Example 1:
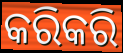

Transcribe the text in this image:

କରିକରି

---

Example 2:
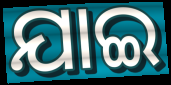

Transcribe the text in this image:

ଯାଇ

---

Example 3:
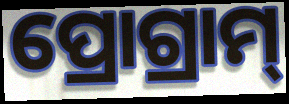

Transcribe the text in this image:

ପ୍ରୋଗ୍ରାମ୍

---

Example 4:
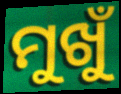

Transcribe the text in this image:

ମୁଖୁଁ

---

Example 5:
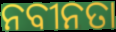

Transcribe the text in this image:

ନବୀନତା